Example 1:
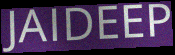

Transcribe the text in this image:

JAIDEEP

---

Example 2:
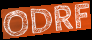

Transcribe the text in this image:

ODRF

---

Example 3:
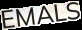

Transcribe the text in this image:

EMALS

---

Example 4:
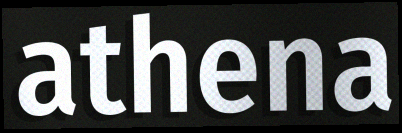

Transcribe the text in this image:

athena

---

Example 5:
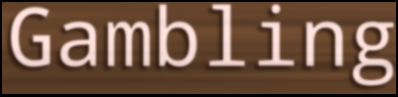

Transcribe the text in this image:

Gambling